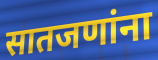
सातजणांना